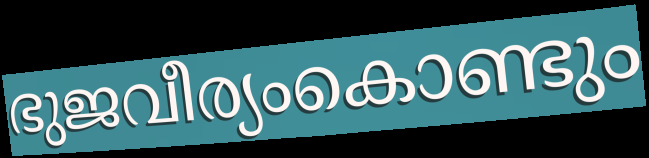
ഭുജവീര്യംകൊണ്ടും